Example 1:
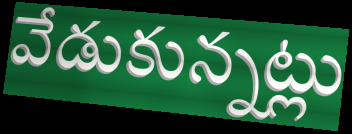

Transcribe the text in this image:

వేడుకున్నట్లు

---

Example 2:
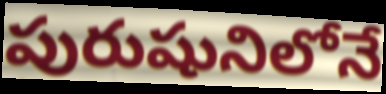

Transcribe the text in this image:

పురుషునిలోనే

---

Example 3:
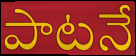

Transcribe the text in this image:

పాటనే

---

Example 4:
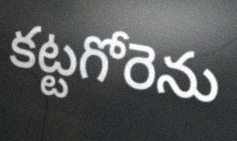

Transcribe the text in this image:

కట్టగోరెను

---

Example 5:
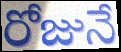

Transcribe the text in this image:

రోజునే